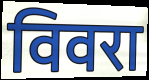
विवरा